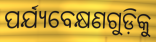
ପର୍ଯ୍ୟବେକ୍ଷଣଗୁଡ଼ିକୁ